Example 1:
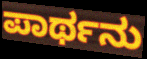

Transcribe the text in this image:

ಪಾರ್ಥನು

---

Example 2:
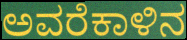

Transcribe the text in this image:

ಅವರೆಕಾಳಿನ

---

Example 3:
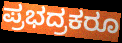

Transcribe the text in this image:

ಪ್ರಭದ್ರಕರೂ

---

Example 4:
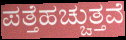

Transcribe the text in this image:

ಪತ್ತೆಹಚ್ಚುತ್ತವೆ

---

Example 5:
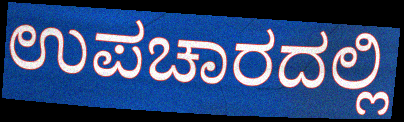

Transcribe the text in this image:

ಉಪಚಾರದಲ್ಲಿ